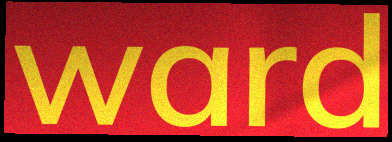
ward